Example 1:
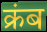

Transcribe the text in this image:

क्रंब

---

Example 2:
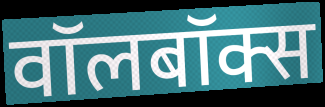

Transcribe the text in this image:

वॉलबॉक्स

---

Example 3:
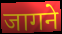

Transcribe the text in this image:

जागने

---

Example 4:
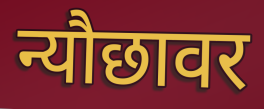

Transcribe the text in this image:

न्यौछावर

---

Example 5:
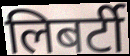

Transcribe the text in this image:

लिबर्टी